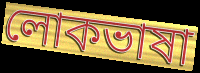
লোকভাষা